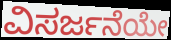
ವಿಸರ್ಜನೆಯೇ